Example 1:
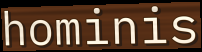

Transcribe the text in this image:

hominis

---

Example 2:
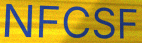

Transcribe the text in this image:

NFCSF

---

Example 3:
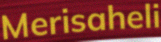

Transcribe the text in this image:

Merisaheli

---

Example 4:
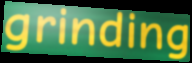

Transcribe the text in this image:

grinding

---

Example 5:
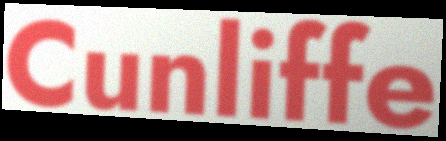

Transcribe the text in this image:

Cunliffe